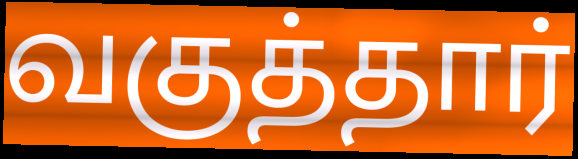
வகுத்தார்